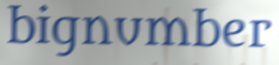
bignumber